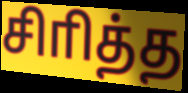
சிரித்த